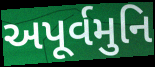
અપૂર્વમુનિ